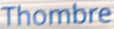
Thombre